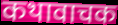
कथावाचक